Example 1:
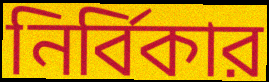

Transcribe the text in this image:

নির্বিকার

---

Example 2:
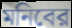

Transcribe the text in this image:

মনিবের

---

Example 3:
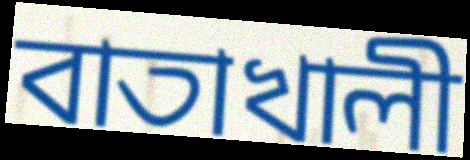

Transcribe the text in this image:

বাতাখালী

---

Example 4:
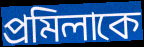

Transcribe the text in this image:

প্রমিলাকে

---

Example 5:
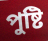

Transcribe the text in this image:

পুষ্টি